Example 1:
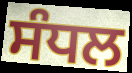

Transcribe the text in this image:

ਸੰਧਲ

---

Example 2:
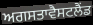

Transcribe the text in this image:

ਅਗਸਤਾਵੈਸਟਲੈਂਡ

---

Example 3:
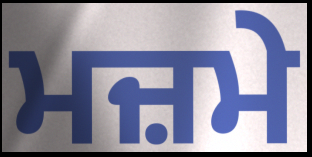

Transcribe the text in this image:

ਮਜ਼ਮੇ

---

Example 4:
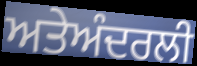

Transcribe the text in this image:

ਅਤੇਅੰਦਰਲੀ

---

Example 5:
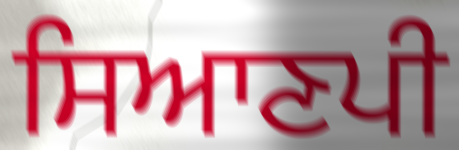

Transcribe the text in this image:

ਸਿਆਣਪੀ